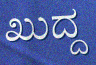
ಖುದ್ದ